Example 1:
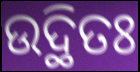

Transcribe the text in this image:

ଉଦ୍ଥିତଃ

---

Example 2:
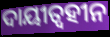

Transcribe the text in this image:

ଦାୟୀତ୍ୱହୀନ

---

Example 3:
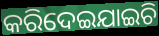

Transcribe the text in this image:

କରିଦେଇଯାଇଚି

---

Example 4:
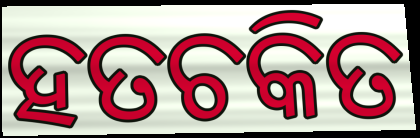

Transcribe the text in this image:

ହତଚକିତ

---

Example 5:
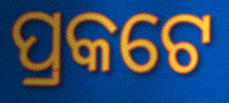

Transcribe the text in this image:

ପ୍ରକଟେ